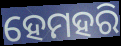
ହେମହରି